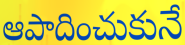
ఆపాదించుకునే